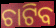
ଚାଟିବ